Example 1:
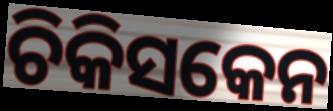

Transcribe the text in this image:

ଚିକିସକେନ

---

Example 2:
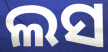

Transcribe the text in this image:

ଲସ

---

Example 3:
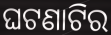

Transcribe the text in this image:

ଘଟଣାଟିର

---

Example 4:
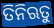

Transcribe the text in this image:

ତିନିଋତୁ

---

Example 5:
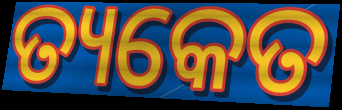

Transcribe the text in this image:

ତ୍ୟକେତ